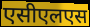
एसीएलएस